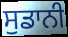
ਸੁਡਾਨੀ